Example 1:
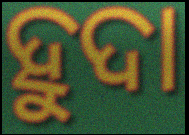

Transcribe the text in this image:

ହୁଦା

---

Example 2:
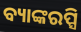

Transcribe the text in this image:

ବ୍ୟାଙ୍କରପ୍ସି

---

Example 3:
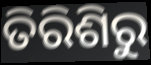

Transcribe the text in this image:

ତିରିଶିରୁ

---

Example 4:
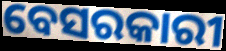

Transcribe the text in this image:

ବେସରକାରୀ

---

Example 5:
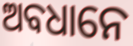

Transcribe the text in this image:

ଅବଧାନେ